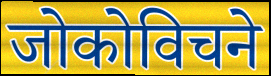
जोकोविचने